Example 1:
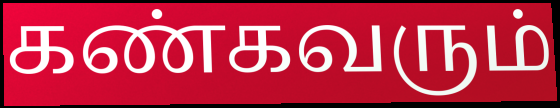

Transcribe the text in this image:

கண்கவரும்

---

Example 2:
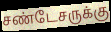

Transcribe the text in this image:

சண்டேசருக்கு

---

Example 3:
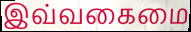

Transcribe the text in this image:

இவ்வகைமை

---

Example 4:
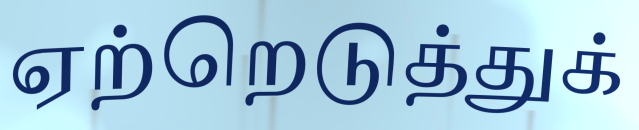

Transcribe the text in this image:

ஏற்றெடுத்துக்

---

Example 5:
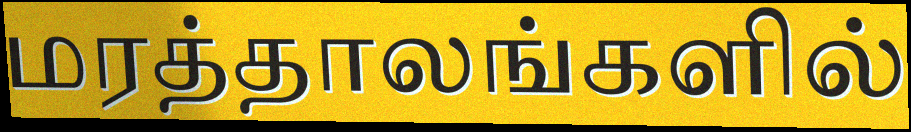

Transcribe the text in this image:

மரத்தாலங்களில்